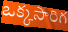
ఒక్కసారిగ